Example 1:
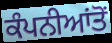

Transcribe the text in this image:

ਕੰਪਨੀਆਂਤੋਂ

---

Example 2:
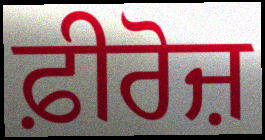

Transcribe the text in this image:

ਫ਼ੀਰੋਜ਼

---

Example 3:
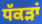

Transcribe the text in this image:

ਧੱਕੜਾਂ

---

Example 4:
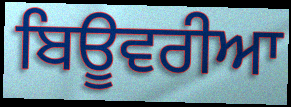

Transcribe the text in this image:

ਬਿਊਵਰੀਆ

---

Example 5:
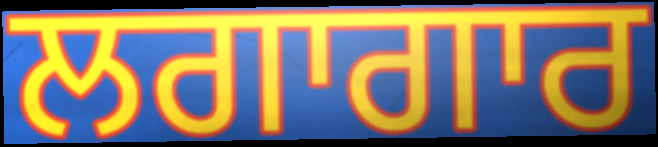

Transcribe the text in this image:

ਲਗਾਗਾਰ